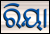
ରିୟା